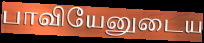
பாவியேனுடைய